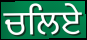
ਚਲਿਏ